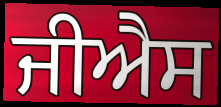
ਜੀਐਸ